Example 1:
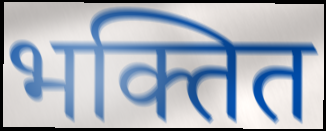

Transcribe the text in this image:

भक्तित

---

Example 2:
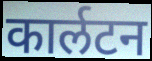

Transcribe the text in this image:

कार्लटन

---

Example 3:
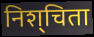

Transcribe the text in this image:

निश्चिता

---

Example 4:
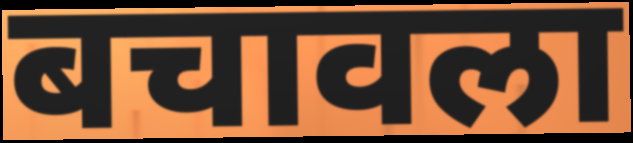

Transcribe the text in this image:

बचावला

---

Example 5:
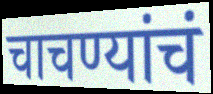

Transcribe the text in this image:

चाचण्यांचं